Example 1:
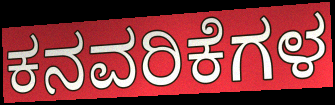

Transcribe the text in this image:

ಕನವರಿಕೆಗಳ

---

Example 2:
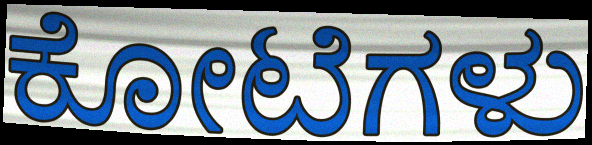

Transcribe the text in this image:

ಕೋಟೆಗಳು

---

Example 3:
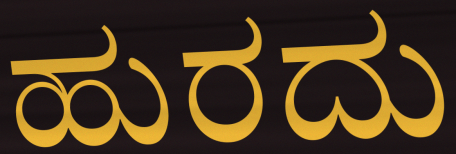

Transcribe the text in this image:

ಹುರದು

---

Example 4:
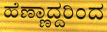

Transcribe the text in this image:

ಹೆಣ್ಣಾದ್ದರಿಂದ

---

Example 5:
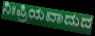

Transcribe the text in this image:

ನಿಃಪ್ರಿಯವಾದುದ